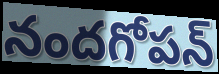
నందగోపన్